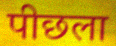
पीछला